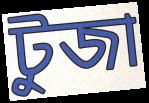
টুজা